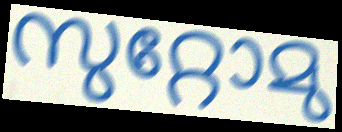
സുറ്റോമു